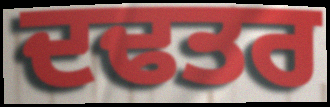
ਦਢਤਰ